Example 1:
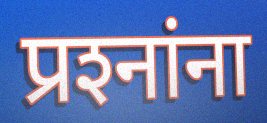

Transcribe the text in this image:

प्रश्‍नांना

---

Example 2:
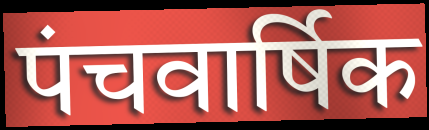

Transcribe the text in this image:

पंचवार्षिक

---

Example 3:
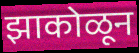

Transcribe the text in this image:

झाकोळून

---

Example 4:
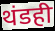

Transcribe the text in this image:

थंडही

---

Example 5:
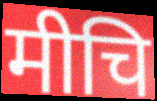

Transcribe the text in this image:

मीचि